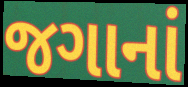
જગાનાં